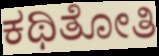
ಕಥಿತೋತಿ